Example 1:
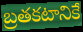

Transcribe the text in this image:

బ్రతకటానికే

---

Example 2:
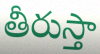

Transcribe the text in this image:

తీరుస్తా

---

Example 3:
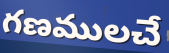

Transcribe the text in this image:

గణములచే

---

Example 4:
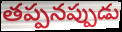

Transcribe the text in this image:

తప్పనప్పుడు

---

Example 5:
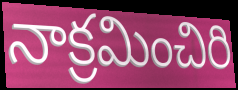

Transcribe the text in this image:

నాక్రమించిరి